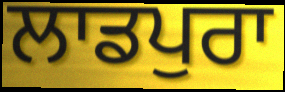
ਲਾਡਪੁਰਾ